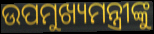
ଉପମୁଖ୍ୟମନ୍ତ୍ରୀଙ୍କୁ